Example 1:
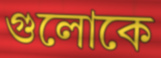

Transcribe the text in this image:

গুলোকে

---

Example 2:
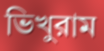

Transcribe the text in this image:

ভিখুরাম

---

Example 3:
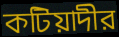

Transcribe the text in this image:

কটিয়াদীর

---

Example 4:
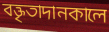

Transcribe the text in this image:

বক্তৃতাদানকালে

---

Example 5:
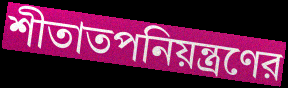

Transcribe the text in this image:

শীতাতপনিয়ন্ত্রণের